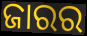
ଜାରର